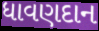
ધાવણદાન